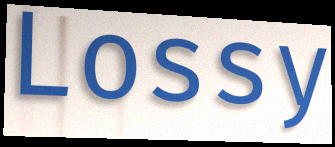
Lossy